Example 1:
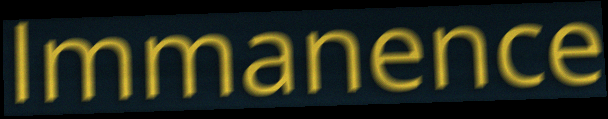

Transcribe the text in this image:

Immanence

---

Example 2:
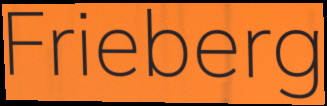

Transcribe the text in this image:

Frieberg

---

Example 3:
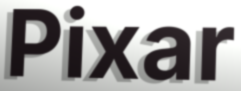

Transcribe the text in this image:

Pixar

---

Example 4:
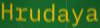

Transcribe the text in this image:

Hrudaya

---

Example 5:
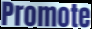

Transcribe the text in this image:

Promote